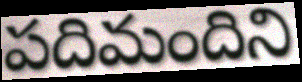
పదిమందిని